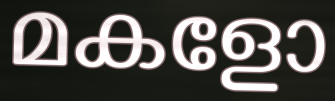
മകളോ